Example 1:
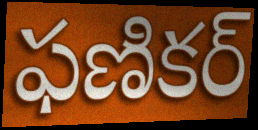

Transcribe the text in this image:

ఫణికర్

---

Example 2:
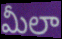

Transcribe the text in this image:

మీలా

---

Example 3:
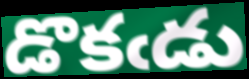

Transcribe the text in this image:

డొకఁడు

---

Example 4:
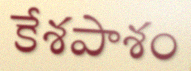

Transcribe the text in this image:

కేశపాశం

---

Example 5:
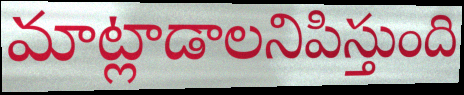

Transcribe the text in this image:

మాట్లాడాలనిపిస్తుంది